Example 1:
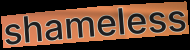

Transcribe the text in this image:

shameless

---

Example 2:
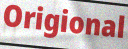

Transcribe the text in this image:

Origional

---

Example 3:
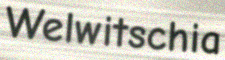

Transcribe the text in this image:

Welwitschia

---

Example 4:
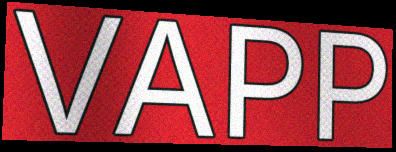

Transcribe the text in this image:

VAPP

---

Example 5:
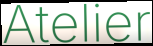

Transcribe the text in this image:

Atelier